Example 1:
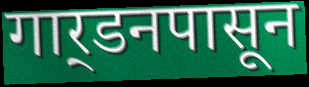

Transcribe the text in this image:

गार्डनपासून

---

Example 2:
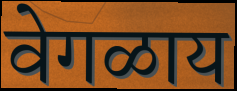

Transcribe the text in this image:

वेगळाय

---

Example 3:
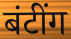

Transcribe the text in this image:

बंटींग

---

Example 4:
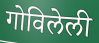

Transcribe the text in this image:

गोविलेली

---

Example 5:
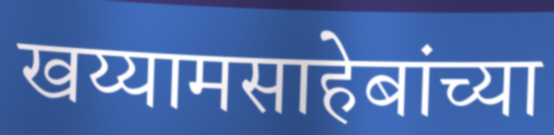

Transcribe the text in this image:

खय्यामसाहेबांच्या